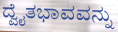
ದ್ವೈತಭಾವವನ್ನು